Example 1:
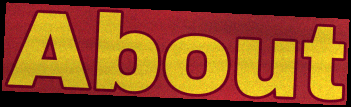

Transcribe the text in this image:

About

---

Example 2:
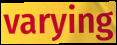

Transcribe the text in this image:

varying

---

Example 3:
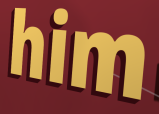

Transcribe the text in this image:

him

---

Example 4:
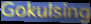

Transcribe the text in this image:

Gokulsing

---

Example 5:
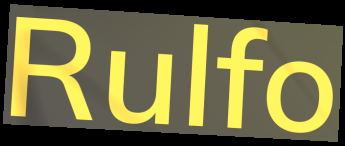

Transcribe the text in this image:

Rulfo